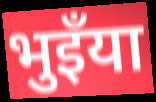
भुइँया